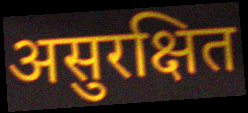
असुरक्षित